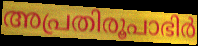
അപ്രതിരൂപാഭിർ